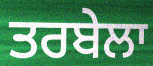
ਤਰਬੇਲਾ